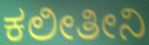
ಕಲೀತೀನಿ